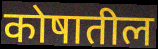
कोषातील